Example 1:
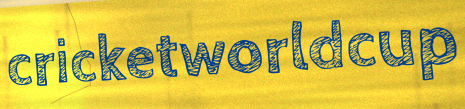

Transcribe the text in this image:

cricketworldcup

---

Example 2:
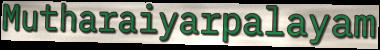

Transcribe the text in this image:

Mutharaiyarpalayam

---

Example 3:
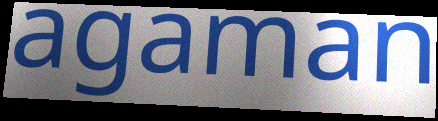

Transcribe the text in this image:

agaman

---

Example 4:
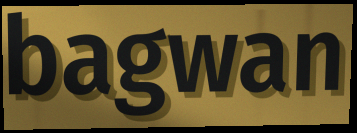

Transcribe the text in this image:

bagwan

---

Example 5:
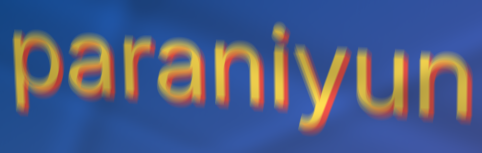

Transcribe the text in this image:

paraniyun